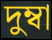
দুম্বা